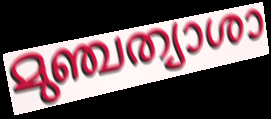
മുഞ്ചത്യാശാ